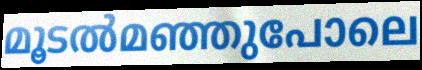
മൂടൽമഞ്ഞുപോലെ